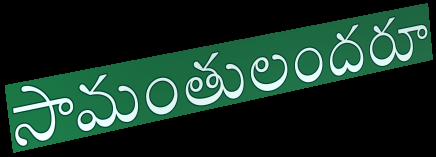
సామంతులందరూ